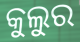
କୁଲୁର